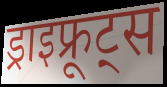
ड्राइफ्रूट्स